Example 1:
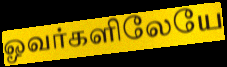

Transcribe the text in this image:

ஓவர்களிலேயே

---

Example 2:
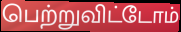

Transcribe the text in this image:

பெற்றுவிட்டோம்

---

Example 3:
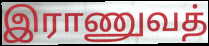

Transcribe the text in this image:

இராணுவத்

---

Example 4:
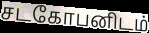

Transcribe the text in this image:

சடகோபனிடம்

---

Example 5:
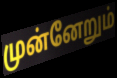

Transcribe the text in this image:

முன்னேறும்